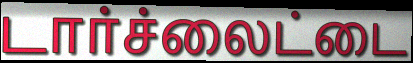
டார்ச்லைட்டை